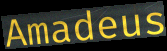
Amadeus